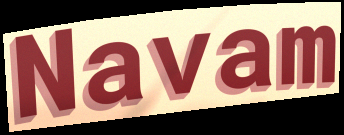
Navam